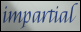
impartial